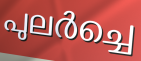
പുലർച്ചെ